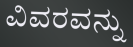
ವಿವರವನ್ನು